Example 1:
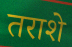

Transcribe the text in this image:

तराशे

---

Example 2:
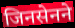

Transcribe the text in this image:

जिनसेनने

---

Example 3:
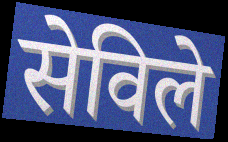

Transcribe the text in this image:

सेविले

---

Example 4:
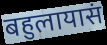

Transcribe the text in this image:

बहुलायासं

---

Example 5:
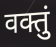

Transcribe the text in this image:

वक्तुं